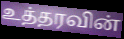
உத்தரவின்